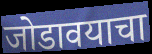
जोडावयाचा